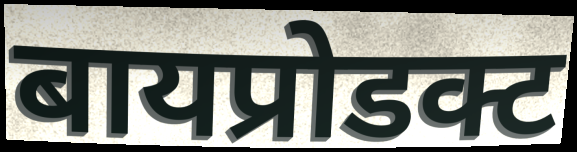
बायप्रोडक्ट